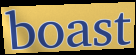
boast